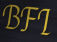
BFI